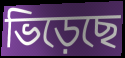
ভিড়েছে